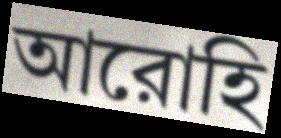
আরোহি